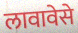
लावावेसे